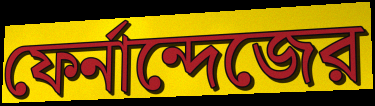
ফের্নান্দেজের